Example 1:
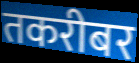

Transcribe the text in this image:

तकरीबर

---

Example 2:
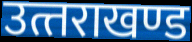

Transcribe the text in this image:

उत्‍तराखण्‍ड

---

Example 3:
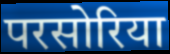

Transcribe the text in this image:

परसोरिया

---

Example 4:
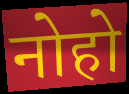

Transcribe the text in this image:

नोहो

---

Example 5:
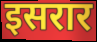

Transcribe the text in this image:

इसरार